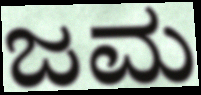
ಜಮ